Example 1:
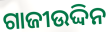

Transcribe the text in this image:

ଗାଜୀଉଦ୍ଦିନ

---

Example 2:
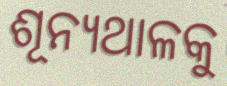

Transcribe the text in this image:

ଶୂନ୍ୟଥାଳକୁ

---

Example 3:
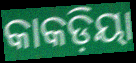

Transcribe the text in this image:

କାକଡ଼ିୟା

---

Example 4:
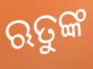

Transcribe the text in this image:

ଋତୁଙ୍କ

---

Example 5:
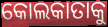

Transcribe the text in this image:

କୋଲକାତାକୁ